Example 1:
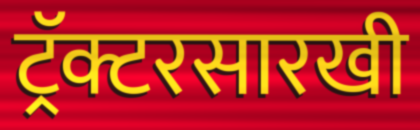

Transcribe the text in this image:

ट्रॅक्टरसारखी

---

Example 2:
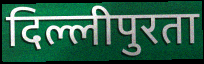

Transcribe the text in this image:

दिल्लीपुरता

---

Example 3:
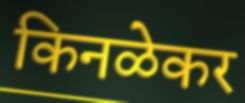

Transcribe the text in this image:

किनळेकर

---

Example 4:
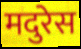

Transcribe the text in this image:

मदुरेस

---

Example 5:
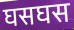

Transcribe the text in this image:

घसघस